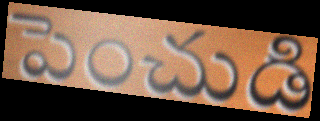
పెంచుడి